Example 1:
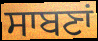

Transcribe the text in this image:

ਸਾਬਣਾਂ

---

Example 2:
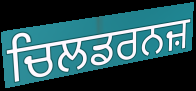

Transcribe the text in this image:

ਚਿਲਡਰਨਜ਼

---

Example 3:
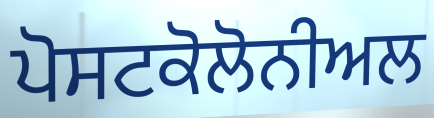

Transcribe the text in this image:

ਪੋਸਟਕੋਲੋਨੀਅਲ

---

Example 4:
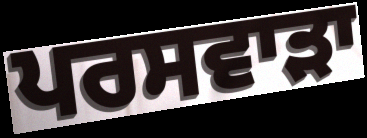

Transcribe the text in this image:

ਪਰਸਵਾੜਾ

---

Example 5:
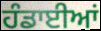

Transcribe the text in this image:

ਹੰਡਾਈਆਂ